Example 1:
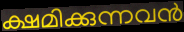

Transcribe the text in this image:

ക്ഷമിക്കുന്നവൻ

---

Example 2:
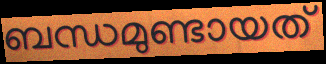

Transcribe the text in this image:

ബന്ധമുണ്ടായത്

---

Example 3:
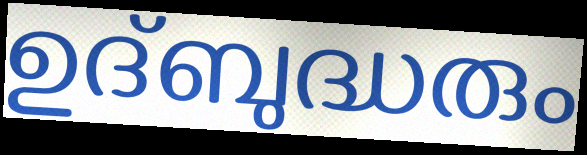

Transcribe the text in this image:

ഉദ്ബുദ്ധരും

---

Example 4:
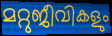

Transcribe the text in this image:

മറ്റുജീവികളും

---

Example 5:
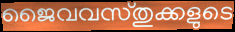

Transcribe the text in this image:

ജൈവവസ്തുക്കളുടെ